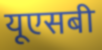
यूएसबी